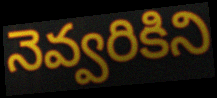
నెవ్వరికిని